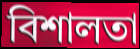
বিশালতা